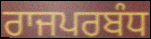
ਰਾਜਪਰਬੰਧ